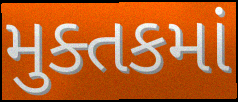
મુક્તકમાં